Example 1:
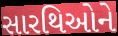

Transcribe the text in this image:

સારથિઓને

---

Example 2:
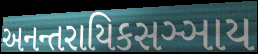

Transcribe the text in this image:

અનન્તરાયિકસઞ્ઞાય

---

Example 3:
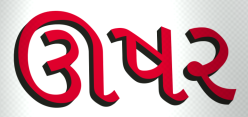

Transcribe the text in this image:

ઊષર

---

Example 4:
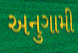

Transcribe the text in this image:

અનુગામી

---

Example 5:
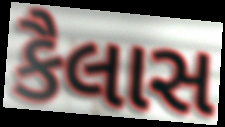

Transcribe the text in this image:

કૈલાસ